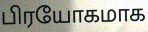
பிரயோகமாக